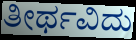
ತೀರ್ಥವಿದು